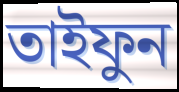
তাইফুন